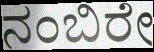
ನಂಬಿರೇ